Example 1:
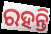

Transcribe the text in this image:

ରହନ୍ତି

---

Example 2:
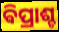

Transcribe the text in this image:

ଵିପ୍ରାଶ୍ଚ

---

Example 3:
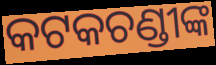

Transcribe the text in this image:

କଟକଚଣ୍ଡୀଙ୍କ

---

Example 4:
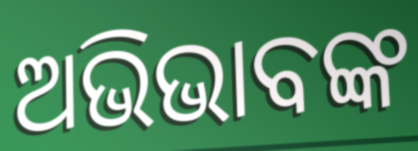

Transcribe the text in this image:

ଅଭିଭାବଙ୍କ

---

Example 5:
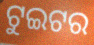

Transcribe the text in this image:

ଟୁଇଟର